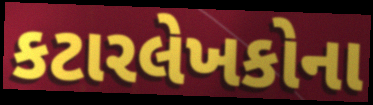
કટારલેખકોના